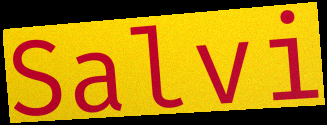
Salvi